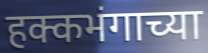
हक्कभंगाच्या